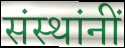
संस्थांनीं